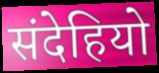
संदेहियो